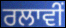
ਰਲਾਵੀਂ